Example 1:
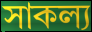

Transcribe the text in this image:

সাকল্য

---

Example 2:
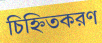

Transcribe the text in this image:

চিহ্নিতকরণ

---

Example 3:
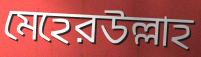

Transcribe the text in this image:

মেহেরউল্লাহ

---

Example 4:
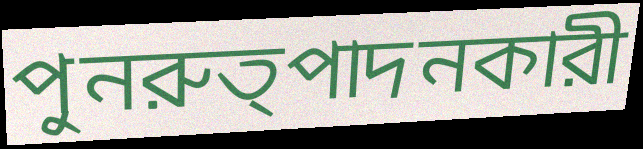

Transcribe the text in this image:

পুনরুত্পাদনকারী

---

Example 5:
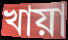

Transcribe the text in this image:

খায়া